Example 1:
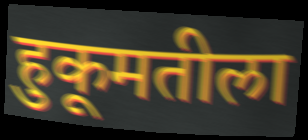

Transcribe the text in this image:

हुकूमतीला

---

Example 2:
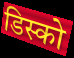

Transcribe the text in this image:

डिस्को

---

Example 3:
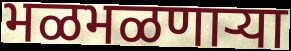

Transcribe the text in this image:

भळभळणाऱ्या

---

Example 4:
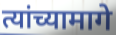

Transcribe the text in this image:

त्यांच्यामागे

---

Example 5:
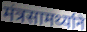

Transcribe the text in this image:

मंत्रसामर्थ्याने